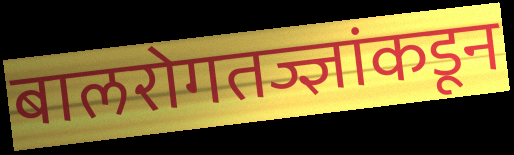
बालरोगतज्ज्ञांकडून